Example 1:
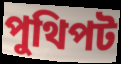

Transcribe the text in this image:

পুথিপট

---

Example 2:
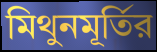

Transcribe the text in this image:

মিথুনমূর্তির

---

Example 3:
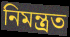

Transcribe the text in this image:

নিমন্ত্রত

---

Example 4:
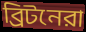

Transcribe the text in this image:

ব্রিটনেরা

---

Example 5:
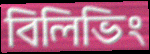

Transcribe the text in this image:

বিলিভিং